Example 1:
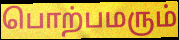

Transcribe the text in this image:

பொற்பமரும்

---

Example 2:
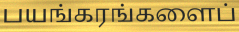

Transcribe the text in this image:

பயங்கரங்களைப்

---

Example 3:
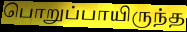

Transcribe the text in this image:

பொறுப்பாயிருந்த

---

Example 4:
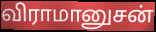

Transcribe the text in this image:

விராமானுசன்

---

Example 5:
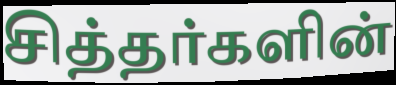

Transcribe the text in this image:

சித்தர்களின்